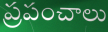
ప్రపంచాలు